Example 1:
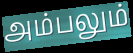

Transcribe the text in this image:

அம்பலும்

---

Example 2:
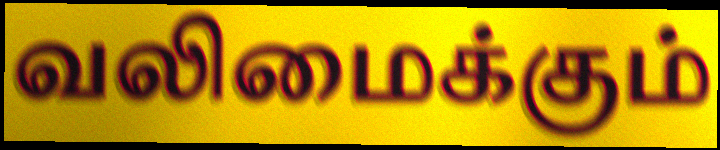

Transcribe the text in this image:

வலிமைக்கும்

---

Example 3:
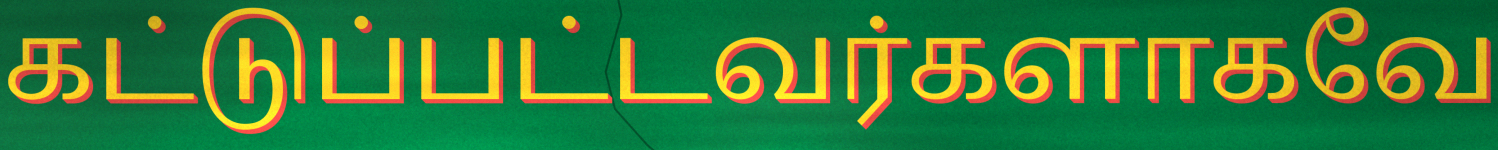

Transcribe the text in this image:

கட்டுப்பட்டவர்களாகவே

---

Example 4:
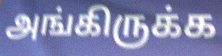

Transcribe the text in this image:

அங்கிருக்க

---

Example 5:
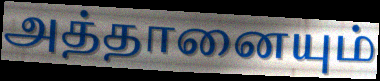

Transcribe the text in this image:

அத்தானையும்